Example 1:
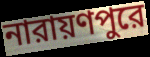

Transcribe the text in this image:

নারায়ণপুরে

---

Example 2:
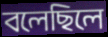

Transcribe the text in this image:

বলেছিলে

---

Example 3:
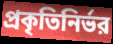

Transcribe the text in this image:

প্রকৃতিনির্ভর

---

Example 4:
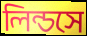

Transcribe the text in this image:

লিন্ডসে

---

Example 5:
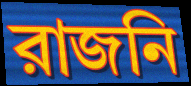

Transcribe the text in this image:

রাজনি